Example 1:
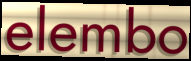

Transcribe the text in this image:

elembo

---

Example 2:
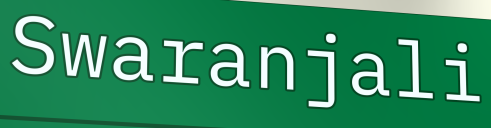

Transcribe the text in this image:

Swaranjali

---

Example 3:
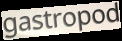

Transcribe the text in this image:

gastropod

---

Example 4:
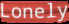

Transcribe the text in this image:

Lonely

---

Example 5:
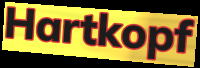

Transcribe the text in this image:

Hartkopf